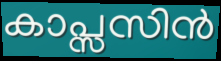
കാപ്സസിൻ